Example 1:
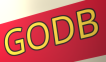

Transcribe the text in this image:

GODB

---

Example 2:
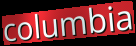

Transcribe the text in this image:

columbia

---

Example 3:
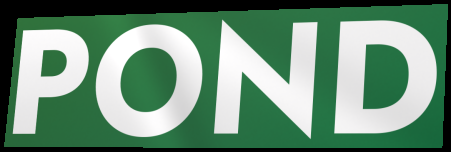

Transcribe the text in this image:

POND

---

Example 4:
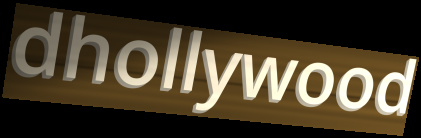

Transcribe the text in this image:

dhollywood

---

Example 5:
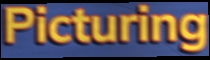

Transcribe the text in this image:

Picturing